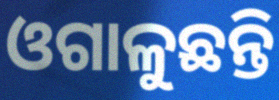
ଓଗାଳୁଛନ୍ତି